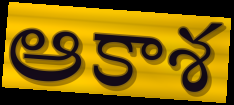
ఆకాశ